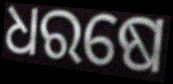
ଧରଷେ